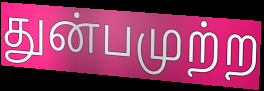
துன்பமுற்ற